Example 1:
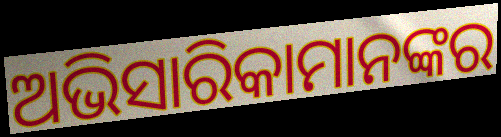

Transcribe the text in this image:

ଅଭିସାରିକାମାନଙ୍କର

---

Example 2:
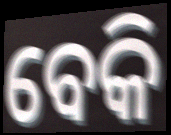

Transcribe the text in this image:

ବେକି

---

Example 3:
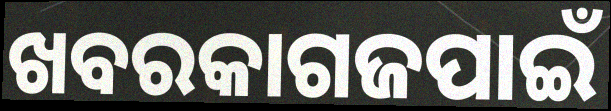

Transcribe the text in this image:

ଖବରକାଗଜପାଇଁ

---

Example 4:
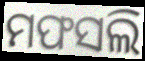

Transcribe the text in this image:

ମଫସଲି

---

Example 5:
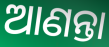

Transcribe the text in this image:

ଆଣନ୍ତା